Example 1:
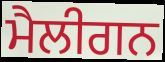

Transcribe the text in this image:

ਮੈਲੀਗਨ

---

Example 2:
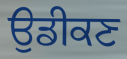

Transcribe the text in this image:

ਉਡੀਕਣ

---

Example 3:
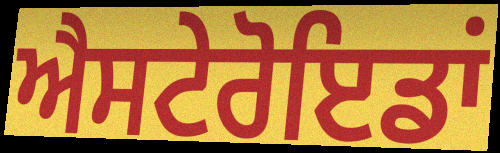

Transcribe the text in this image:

ਐਸਟੇਰੋਇਡਾਂ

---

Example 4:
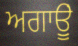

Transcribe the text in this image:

ਅਗਾਊੂਂ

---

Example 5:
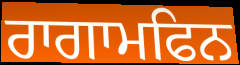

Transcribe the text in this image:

ਰਾਗਾਮਫਿਨ